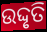
ଉଦ୍ଦୃତି